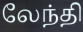
லேந்தி